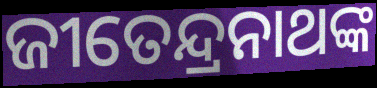
ଜୀତେନ୍ଦ୍ରନାଥଙ୍କ